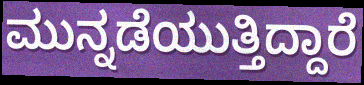
ಮುನ್ನಡೆಯುತ್ತಿದ್ದಾರೆ